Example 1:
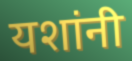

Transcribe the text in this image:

यशांनी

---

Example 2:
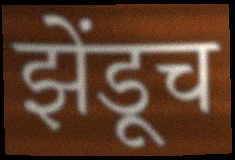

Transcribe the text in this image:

झेंडूच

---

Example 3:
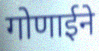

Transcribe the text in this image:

गोणाईने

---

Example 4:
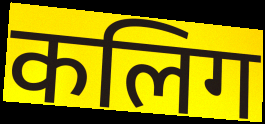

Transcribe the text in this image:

कलिग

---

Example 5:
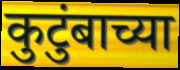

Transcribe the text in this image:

कुटुंबाच्या